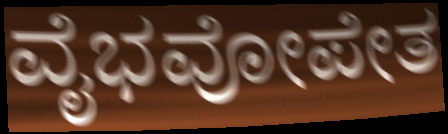
ವೈಭವೋಪೇತ